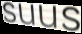
suus